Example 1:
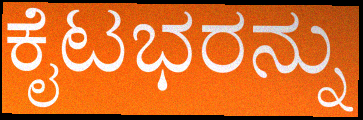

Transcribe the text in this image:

ಕೈಟಭರನ್ನು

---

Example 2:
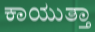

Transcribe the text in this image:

ಕಾಯುತ್ತಾ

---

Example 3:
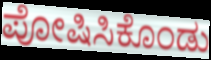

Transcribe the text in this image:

ಪೋಷಿಸಿಕೊಂಡು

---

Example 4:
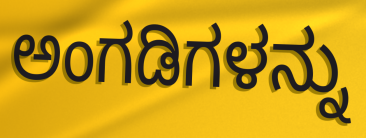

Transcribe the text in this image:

ಅಂಗಡಿಗಳನ್ನು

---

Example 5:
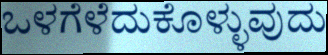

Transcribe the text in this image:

ಒಳಗೆಳೆದುಕೊಳ್ಳುವುದು